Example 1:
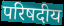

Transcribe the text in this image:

परिषदीय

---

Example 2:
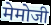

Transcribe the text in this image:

मेमोजी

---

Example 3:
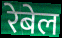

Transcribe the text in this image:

रेबेल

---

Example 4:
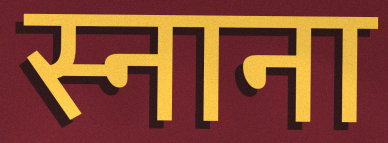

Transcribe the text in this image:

स्नाना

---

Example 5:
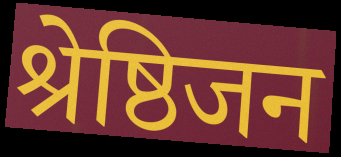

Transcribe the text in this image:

श्रेष्ठिजन